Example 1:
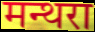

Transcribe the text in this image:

मन्थरा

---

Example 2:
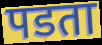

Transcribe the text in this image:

पडता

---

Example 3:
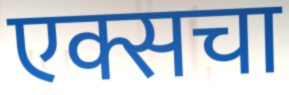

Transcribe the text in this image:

एक्सचा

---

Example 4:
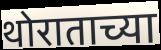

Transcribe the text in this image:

थोराताच्या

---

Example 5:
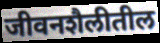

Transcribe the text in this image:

जीवनशैलीतील